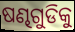
ଷଣ୍ଢଗୁଡିକୁ